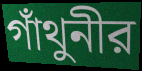
গাঁথুনীর